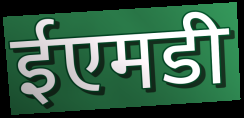
ईएमडी